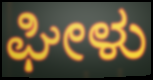
ಘೀಳು